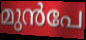
മുൻപേ